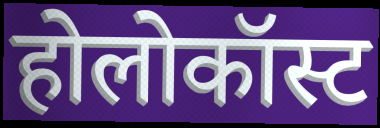
होलोकॉस्ट